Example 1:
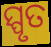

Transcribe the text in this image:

ସ୍ପୃତ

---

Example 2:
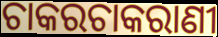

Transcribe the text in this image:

ଚାକରଚାକରାଣୀ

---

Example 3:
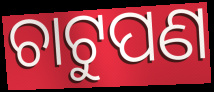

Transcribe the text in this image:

ଚାଟୁପଣ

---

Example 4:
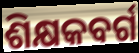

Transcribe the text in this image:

ଶିକ୍ଷକବର୍ଗ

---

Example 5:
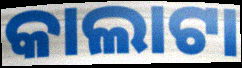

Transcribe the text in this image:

କାଲାଟା